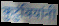
कुटुंबियांनी